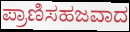
ಪ್ರಾಣಿಸಹಜವಾದ